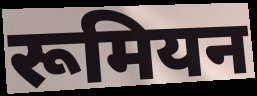
रूमियन